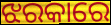
ଝରକାରେ